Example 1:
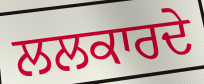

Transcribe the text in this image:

ਲਲਕਾਰਦੇ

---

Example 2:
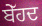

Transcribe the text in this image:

ਬੇੱਹਦ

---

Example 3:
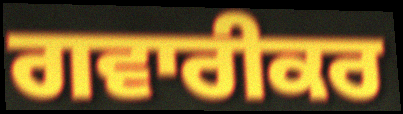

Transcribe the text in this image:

ਗਵਾਰੀਕਰ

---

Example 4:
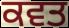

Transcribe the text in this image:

ਕਵਤ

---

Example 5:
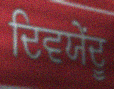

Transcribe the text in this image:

ਦਿਵਯੇਂਦੂ